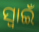
ସ୍ଵାଇଁ